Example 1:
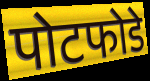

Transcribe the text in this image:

पोटफोडे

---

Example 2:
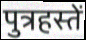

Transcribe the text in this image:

पुत्रहस्तें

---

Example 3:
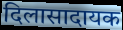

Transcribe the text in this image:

दिलासादायक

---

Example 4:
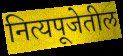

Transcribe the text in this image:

नित्यपूजेतील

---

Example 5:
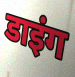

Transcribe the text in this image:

डाइंग